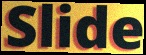
Slide